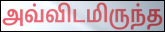
அவ்விடமிருந்த